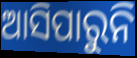
ଆସିପାରୁନି